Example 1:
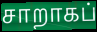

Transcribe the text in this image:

சாறாகப்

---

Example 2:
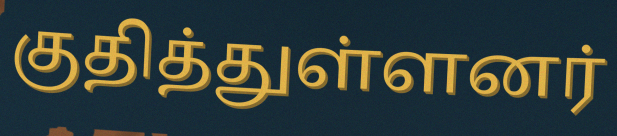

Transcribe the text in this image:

குதித்துள்ளனர்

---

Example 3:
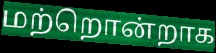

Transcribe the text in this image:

மற்றொன்றாக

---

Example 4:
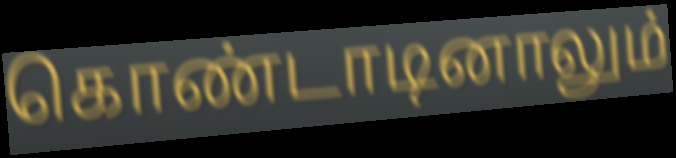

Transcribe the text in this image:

கொண்டாடினாலும்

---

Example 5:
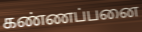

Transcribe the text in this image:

கண்ணப்பனை